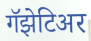
गॅझेटिअर